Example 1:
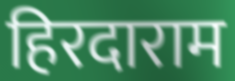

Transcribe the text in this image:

हिरदाराम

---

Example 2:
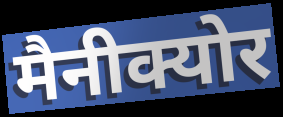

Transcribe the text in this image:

मैनीक्योर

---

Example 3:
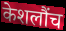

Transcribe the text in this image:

केशलौंच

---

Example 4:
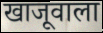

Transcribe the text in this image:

खाजूवाला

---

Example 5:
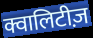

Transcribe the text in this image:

क्वालिटीज़